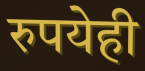
रुपयेही